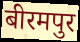
बीरमपुर